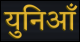
युनिआँ